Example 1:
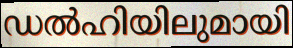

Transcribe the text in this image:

ഡൽഹിയിലുമായി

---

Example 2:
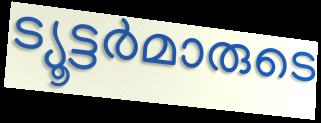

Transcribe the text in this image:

ട്യൂട്ടർമാരുടെ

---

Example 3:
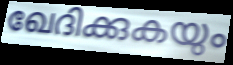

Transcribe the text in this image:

ഖേദിക്കുകയും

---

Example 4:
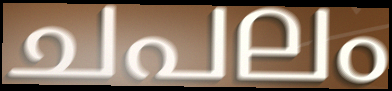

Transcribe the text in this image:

ചപലം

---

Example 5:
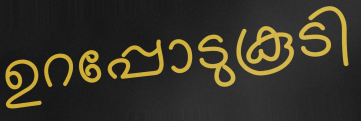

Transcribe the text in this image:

ഉറപ്പോടുകൂടി